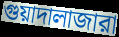
গুয়াদালাজারা